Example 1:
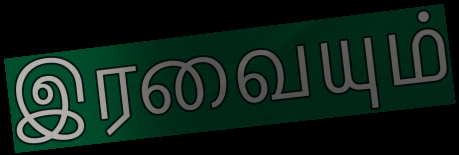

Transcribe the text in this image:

இரவையும்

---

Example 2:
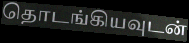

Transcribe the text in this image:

தொடங்கியவுடன்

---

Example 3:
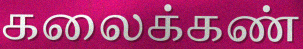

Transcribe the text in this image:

கலைக்கண்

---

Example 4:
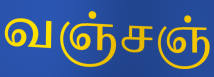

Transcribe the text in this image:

வஞ்சஞ்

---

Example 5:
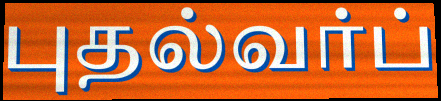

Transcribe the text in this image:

புதல்வர்ப்